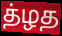
த்ழத